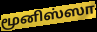
மூனிஸ்ஸா